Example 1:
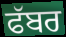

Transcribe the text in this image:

ਫੱਬਰ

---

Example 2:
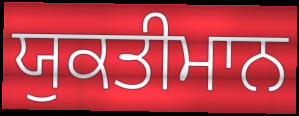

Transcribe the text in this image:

ਯੁਕਤੀਮਾਨ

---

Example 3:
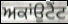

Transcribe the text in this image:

ਅਕਾਂਉਟੈਂਟ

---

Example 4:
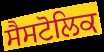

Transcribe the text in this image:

ਸੈਸਟੋਲਿਕ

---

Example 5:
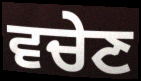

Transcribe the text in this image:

ਵਚੇਣ